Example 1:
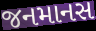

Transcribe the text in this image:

જનમાનસ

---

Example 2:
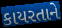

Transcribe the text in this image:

કાયરતાને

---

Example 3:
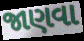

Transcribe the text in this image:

જાણવા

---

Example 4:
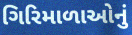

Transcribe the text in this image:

ગિરિમાળાઓનું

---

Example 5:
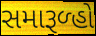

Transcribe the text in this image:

સમારૂળ્હો